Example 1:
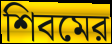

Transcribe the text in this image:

শিবমের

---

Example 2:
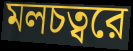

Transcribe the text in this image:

মলচত্বরে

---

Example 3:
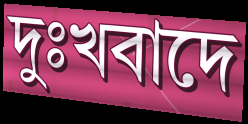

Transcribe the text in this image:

দুঃখবাদে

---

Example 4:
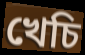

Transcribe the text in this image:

খেচি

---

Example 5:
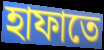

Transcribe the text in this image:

হাফাতে